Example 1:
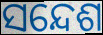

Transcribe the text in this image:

ସନ୍ଦେଶ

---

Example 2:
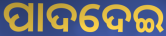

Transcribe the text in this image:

ପାଦଦେଇ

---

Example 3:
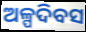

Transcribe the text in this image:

ଅଳ୍ପଦିବସ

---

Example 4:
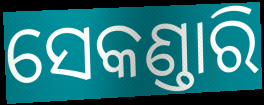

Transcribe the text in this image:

ସେକଣ୍ଡାରି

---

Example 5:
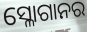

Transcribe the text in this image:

ସ୍ଳୋଗାନର